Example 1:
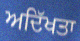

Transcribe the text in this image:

ਅਦਿੱਖਤਾ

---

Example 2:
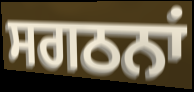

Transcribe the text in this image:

ਸਗਠਨਾਂ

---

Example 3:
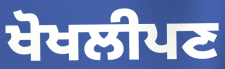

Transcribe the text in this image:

ਖੋਖਲੀਪਣ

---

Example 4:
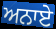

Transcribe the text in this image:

ਅਨਾਏ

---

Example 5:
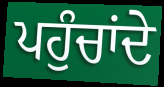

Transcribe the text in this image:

ਪਹੁੰਚਾਂਦੇ